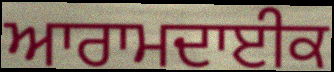
ਆਰਾਮਦਾਈਕ